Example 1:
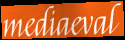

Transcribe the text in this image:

mediaeval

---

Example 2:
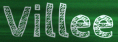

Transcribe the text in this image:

Villee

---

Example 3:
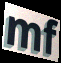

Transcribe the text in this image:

mf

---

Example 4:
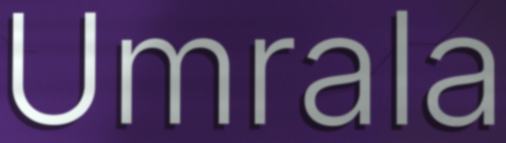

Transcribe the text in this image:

Umrala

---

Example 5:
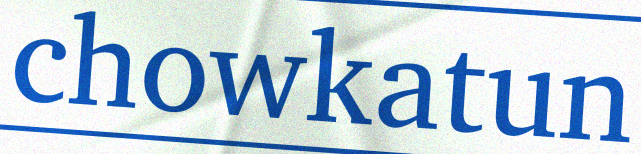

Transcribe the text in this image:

chowkatun